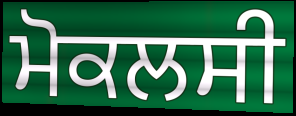
ਮੋਕਲਸੀ